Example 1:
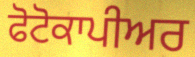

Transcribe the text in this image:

ਫੋਟੋਕਾਪੀਅਰ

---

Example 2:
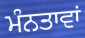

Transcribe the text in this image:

ਮੰਨਤਾਵਾਂ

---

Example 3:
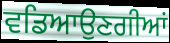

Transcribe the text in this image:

ਵਡਿਆਉਣਗੀਆਂ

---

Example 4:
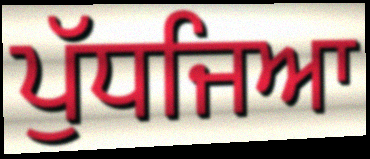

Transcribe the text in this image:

ਪੁੱਧਜਿਆ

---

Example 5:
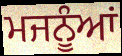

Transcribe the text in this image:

ਮਜਨੂੰਆਂ